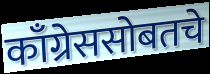
काँग्रेससोबतचे